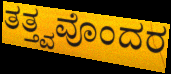
ತತ್ತ್ವವೊಂದರ